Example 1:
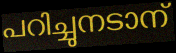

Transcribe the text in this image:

പറിച്ചുനടാന്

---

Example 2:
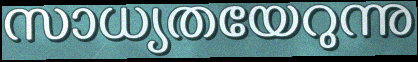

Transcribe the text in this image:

സാധ്യതയേറുന്നു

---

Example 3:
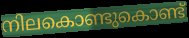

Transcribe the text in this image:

നിലകൊണ്ടുകൊണ്ട്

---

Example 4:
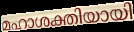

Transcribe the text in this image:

മഹാശക്തിയായി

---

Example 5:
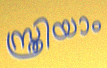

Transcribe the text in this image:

സ്ത്രിയാം